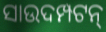
ସାଉଦମ୍ପଟନ୍